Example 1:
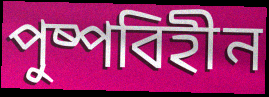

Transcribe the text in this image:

পুষ্পবিহীন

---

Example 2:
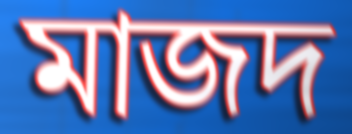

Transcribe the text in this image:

মাজদ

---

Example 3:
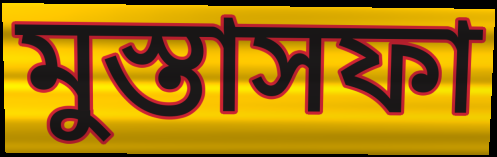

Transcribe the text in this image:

মুস্তাসফা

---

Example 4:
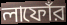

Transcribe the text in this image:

লাফোঁর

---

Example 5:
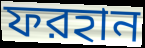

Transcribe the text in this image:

ফরহান